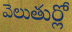
వెలుతుర్లో